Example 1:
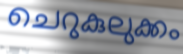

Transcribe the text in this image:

ചെറുകുലുക്കം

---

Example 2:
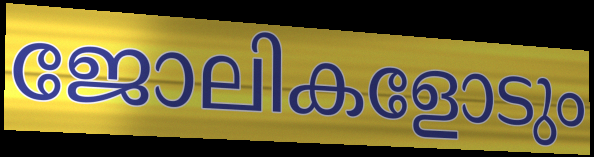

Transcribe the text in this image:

ജോലികളോടും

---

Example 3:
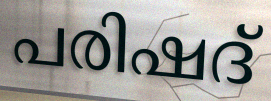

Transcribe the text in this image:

പരിഷദ്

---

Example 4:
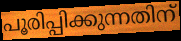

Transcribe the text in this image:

പൂരിപ്പിക്കുന്നതിന്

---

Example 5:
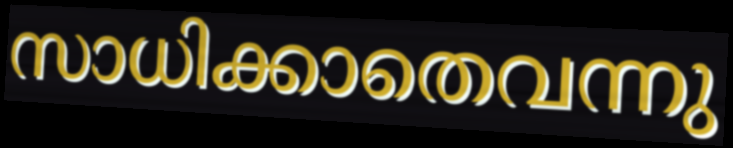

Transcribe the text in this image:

സാധിക്കാതെവന്നു